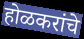
होळकरांचे